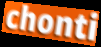
chonti